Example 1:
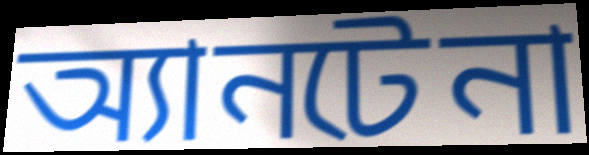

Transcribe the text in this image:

অ্যানটেনা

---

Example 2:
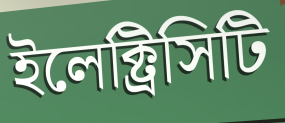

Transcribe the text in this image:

ইলেক্ট্রিসিটি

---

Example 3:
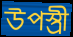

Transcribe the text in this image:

উপস্ত্রী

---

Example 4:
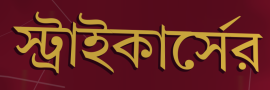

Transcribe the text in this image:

স্ট্রাইকার্সের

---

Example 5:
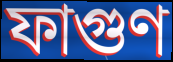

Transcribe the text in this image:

ফাগুণ